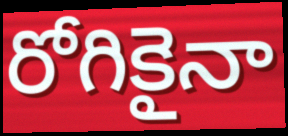
రోగికైనా